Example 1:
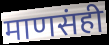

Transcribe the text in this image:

माणसंही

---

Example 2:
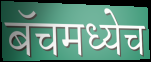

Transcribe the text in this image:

बॅचमध्येच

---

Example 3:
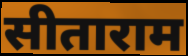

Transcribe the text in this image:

सीताराम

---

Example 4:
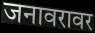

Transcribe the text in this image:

जनावरावर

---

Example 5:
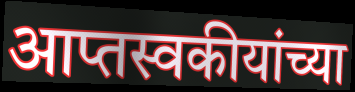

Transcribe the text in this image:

आप्तस्वकीयांच्या